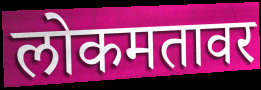
लोकमतावर